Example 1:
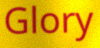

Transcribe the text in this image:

Glory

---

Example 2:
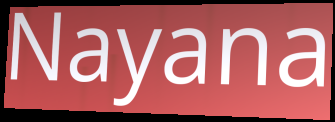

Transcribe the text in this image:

Nayana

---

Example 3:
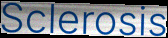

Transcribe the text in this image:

Sclerosis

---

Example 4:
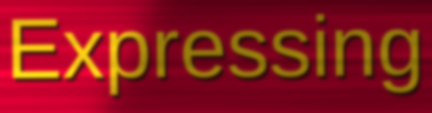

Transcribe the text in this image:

Expressing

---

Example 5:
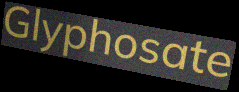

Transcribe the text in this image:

Glyphosate